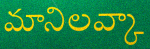
మానిలవ్కా